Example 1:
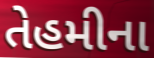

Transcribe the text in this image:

તેહમીના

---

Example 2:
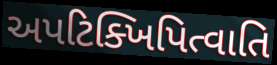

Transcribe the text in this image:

અપટિક્ખિપિત્વાતિ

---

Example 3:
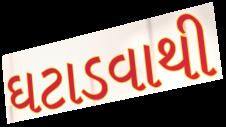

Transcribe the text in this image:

ઘટાડવાથી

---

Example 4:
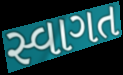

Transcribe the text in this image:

સ્વાગત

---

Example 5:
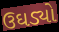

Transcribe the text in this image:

ઉઘડ્યો